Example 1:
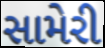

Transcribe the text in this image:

સામેરી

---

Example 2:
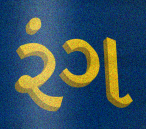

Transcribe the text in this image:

રંગ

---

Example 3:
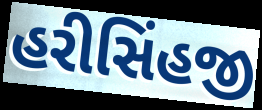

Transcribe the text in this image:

હરીસિંહજી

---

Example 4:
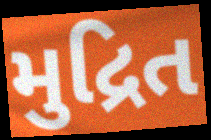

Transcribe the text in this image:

મુદ્રિત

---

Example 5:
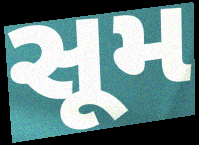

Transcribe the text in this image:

સૂમ